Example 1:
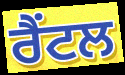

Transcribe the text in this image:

ਰੈਂਟਲ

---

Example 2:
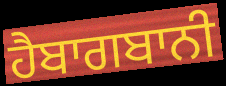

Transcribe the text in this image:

ਹੈਬਾਗਬਾਨੀ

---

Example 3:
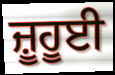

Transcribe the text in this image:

ਜ਼ੂਹੂਈ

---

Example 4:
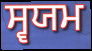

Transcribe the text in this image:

ਸ੍ਵਯਮ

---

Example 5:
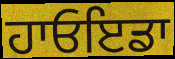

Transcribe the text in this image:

ਹਾਓਇਡਾ